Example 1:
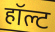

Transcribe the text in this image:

हॉल्‍ट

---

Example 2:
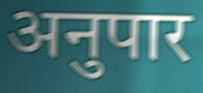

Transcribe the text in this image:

अनुपार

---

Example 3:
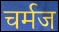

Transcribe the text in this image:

चर्मज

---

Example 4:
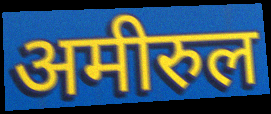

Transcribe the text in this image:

अमीरुल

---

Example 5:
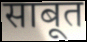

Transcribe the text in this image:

साबूत